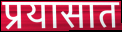
प्रयासात